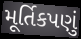
મૂર્તિકપણું